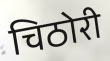
चिठोरी